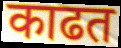
काढत